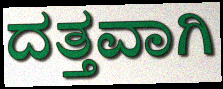
ದತ್ತವಾಗಿ